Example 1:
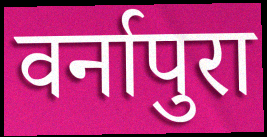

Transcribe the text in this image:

वर्नापुरा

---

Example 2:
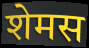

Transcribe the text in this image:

शेमस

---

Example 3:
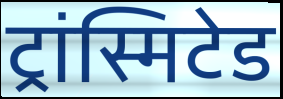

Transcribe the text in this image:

ट्रांस्मिटेड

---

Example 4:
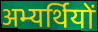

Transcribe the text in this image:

अभ्यर्थियों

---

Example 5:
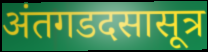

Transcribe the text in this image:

अंतगडदसासूत्र